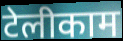
टेलीकाम